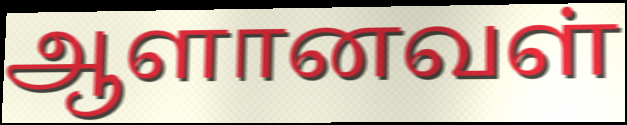
ஆளானவள்